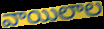
వాయిలాల